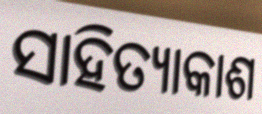
ସାହିତ୍ୟାକାଶ